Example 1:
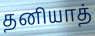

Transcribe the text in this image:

தனியாத்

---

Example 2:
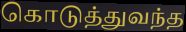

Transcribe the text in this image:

கொடுத்துவந்த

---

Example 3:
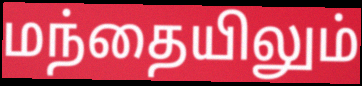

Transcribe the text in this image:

மந்தையிலும்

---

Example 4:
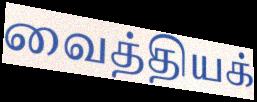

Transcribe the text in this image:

வைத்தியக்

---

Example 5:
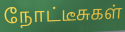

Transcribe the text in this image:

நோட்டீசுகள்